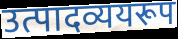
उत्पादव्ययरूप